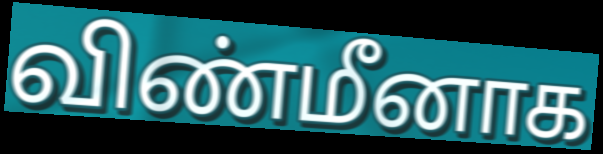
விண்மீனாக